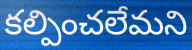
కల్పించలేమని